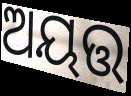
ଅୟତ୍ତ